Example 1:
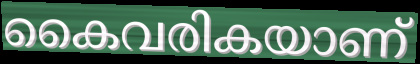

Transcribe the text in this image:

കൈവരികയാണ്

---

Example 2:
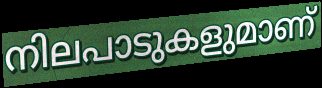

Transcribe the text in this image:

നിലപാടുകളുമാണ്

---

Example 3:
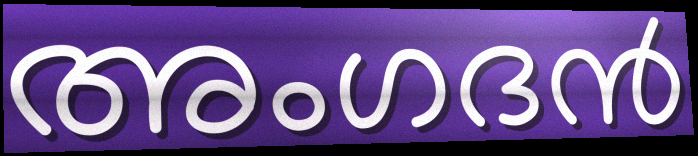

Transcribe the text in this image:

അംഗദൻ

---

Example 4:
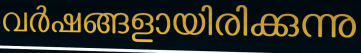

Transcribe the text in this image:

വർഷങ്ങളായിരിക്കുന്നു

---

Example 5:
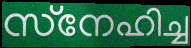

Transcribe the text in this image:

സ്‌നേഹിച്ച